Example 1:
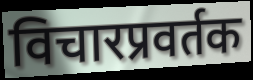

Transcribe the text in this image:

विचारप्रवर्तक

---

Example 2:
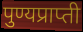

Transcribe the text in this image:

पुण्यप्राप्ती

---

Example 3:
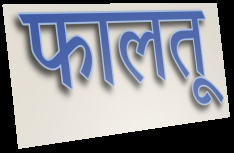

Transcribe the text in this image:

फालतू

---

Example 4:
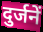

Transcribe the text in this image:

दुर्जनें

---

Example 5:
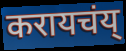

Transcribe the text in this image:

करायचंय्